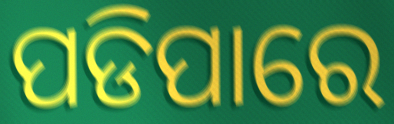
ପଡିପାରେ